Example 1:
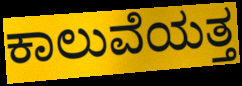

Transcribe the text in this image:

ಕಾಲುವೆಯತ್ತ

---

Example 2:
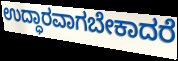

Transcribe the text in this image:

ಉದ್ಧಾರವಾಗಬೇಕಾದರೆ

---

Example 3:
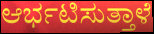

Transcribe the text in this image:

ಆರ್ಭಟಿಸುತ್ತಾಳೆ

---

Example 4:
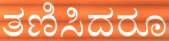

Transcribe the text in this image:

ತಣಿಸಿದರೂ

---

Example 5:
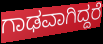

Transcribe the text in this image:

ಗಾಢವಾಗಿದ್ದರೆ